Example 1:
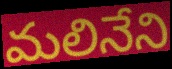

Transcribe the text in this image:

మలినేని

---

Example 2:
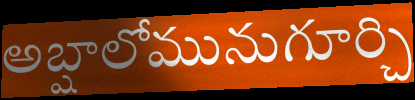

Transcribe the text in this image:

అబ్షాలోమునుగూర్చి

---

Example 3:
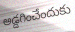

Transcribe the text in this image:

అడ్డగించేందుకు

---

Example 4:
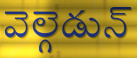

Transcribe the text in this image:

వెల్గెడున్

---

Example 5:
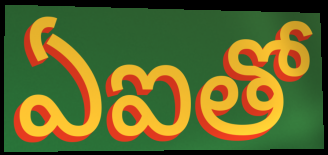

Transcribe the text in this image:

ఏఐతో